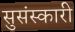
सुसंस्कारी